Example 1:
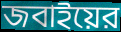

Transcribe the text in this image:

জবাইয়ের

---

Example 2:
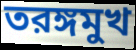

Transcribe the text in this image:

তরঙ্গমুখ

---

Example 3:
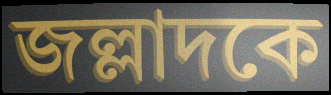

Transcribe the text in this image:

জল্লাদকে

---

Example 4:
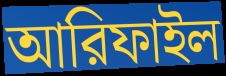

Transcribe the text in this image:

আরিফাইল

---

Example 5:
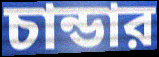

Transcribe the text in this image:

চান্ডার